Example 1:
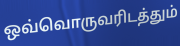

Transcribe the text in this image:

ஒவ்வொருவரிடத்தும்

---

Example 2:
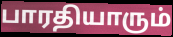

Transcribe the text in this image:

பாரதியாரும்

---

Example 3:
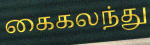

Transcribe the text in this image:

கைகலந்து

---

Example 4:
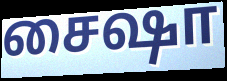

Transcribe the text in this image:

சைஷா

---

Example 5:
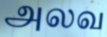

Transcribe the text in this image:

அலவ